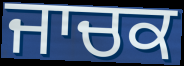
ਜਾਚਕ